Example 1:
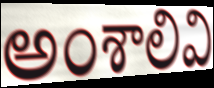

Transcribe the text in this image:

అంశాలివి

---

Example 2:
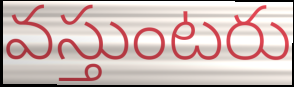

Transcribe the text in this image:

వస్తుంటరు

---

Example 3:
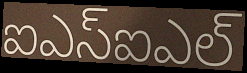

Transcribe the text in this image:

ఐఎస్ఐఎల్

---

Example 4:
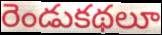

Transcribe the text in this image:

రెండుకథలూ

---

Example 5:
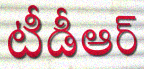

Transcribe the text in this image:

టీడీఆర్